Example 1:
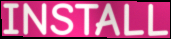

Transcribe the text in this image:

INSTALL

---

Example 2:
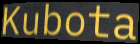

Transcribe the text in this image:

Kubota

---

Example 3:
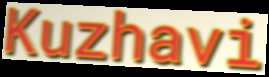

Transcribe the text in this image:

Kuzhavi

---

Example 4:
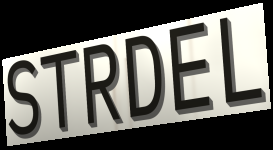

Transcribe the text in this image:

STRDEL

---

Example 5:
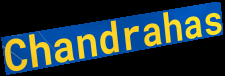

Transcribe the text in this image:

Chandrahas